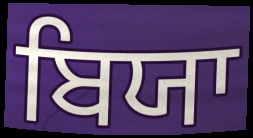
ਬਿਯਾ